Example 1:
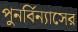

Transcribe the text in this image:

পুনর্বিন্যাসের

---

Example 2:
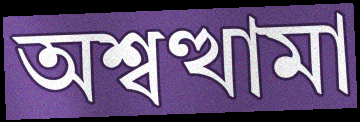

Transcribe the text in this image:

অশ্বত্থামা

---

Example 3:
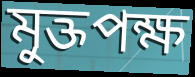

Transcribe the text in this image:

মুক্তপক্ষ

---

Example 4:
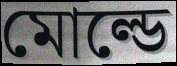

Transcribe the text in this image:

মোল্ডে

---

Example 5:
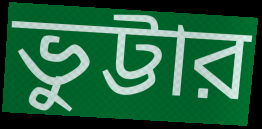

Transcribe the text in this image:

ভুট্টার